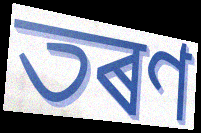
তৰণ